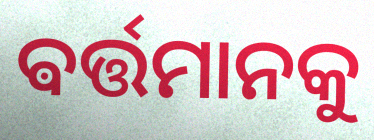
ଵର୍ତ୍ତମାନକୁ